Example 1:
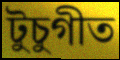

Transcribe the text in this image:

টুচুগীত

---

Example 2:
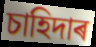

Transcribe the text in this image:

চাহিদাৰ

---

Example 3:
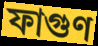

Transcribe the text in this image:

ফাগুণ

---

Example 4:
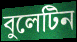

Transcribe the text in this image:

বুলেটিন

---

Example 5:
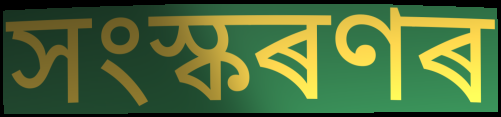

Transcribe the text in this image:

সংস্কৰণৰ